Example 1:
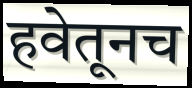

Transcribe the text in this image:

हवेतूनच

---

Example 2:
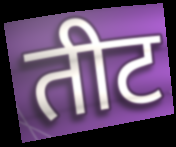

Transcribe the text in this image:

तीट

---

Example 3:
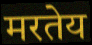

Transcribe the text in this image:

मरतेय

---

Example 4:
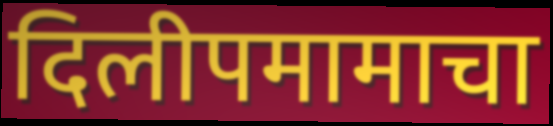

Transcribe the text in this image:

दिलीपमामाचा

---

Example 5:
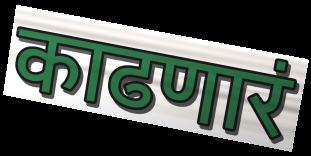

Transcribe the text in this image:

काढणारं